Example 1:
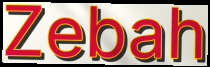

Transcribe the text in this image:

Zebah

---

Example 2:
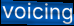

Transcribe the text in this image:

voicing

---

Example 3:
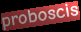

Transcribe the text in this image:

proboscis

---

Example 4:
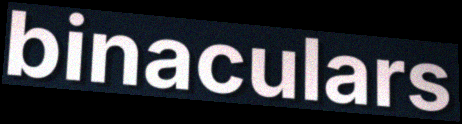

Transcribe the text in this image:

binaculars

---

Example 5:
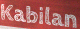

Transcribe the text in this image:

Kabilan